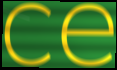
ce